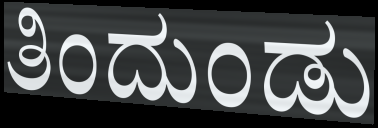
ತಿಂದುಂಡು